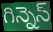
గిన్నెస్